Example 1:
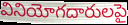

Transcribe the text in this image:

వినియోగదారులపై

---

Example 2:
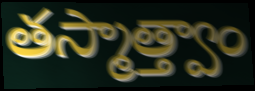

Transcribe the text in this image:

తస్మాత్త్వాం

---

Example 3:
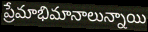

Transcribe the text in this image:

ప్రేమాభిమానాలున్నాయి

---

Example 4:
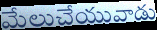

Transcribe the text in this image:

మేలుచేయువాడు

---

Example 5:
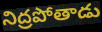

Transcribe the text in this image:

నిద్రపోతాడు